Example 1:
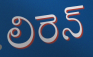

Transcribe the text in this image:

లిరెన్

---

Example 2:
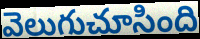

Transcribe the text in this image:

వెలుగుచూసింది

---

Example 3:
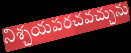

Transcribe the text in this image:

నిశ్చయపరచవచ్చును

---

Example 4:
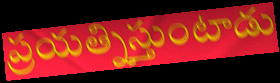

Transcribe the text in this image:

ప్రయత్నిస్తుంటాడు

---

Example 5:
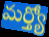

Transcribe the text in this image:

మర్త్యో